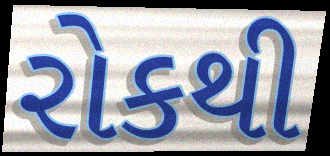
રોકથી